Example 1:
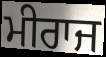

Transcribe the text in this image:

ਮੀਰਾਜ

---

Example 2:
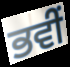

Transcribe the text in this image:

ਭਵੀਂ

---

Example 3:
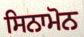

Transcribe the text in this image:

ਸਿਨਾਮੋਨ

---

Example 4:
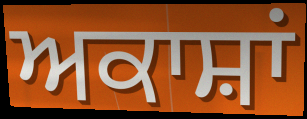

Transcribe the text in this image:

ਅਕਾਸ਼ਾਂ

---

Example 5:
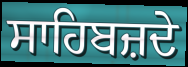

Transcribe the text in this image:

ਸਾਹਿਬਜ਼ਦੇ